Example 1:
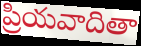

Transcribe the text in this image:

ప్రియవాదితా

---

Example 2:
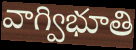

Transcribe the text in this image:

వాగ్విభూతి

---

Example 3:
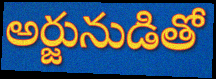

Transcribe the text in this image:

అర్జునుడితో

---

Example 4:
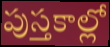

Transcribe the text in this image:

పుస్తకాల్లో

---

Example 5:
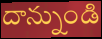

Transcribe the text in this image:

దాన్నుండి